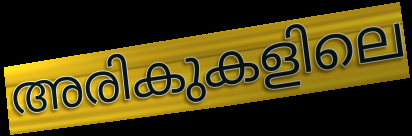
അരികുകളിലെ